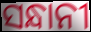
ସନ୍ଧାନୀ